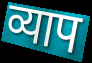
व्याप